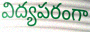
విద్యపరంగా